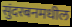
सुंदरबनमधील